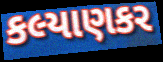
કલ્યાણકર